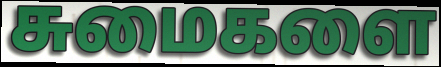
சுமைகளை